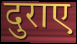
दुराए